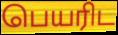
பெயரிட